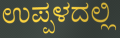
ಉಪ್ಪಳದಲ್ಲಿ